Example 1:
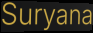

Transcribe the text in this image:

Suryana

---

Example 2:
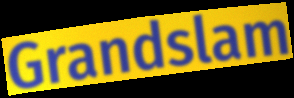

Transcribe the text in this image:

Grandslam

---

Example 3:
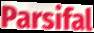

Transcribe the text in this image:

Parsifal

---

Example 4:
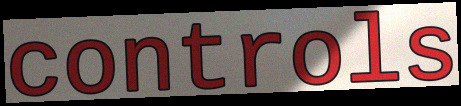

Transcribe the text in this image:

controls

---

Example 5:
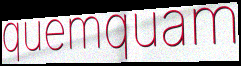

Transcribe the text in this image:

quemquam